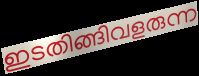
ഇടതിങ്ങിവളരുന്ന